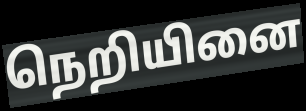
நெறியினை